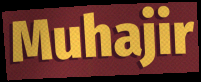
Muhajir